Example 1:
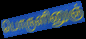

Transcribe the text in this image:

பொருளினுஞ்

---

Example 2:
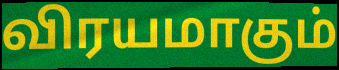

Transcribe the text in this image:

விரயமாகும்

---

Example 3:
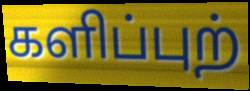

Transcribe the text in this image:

களிப்புற்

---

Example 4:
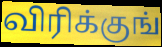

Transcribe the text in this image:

விரிக்குங்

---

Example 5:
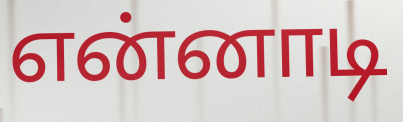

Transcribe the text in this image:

என்னாடி